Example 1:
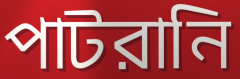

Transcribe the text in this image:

পাটরানি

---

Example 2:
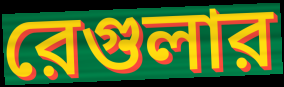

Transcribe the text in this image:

রেগুলার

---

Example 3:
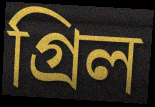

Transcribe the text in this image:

গ্রিল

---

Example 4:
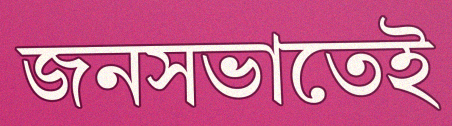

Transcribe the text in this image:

জনসভাতেই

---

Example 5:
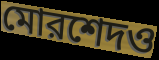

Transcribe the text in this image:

মোরশেদও